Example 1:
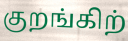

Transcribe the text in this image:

குறங்கிற்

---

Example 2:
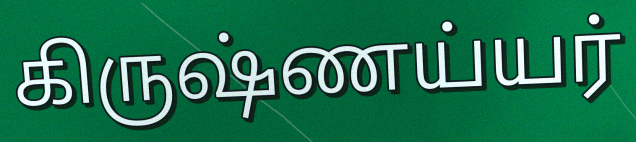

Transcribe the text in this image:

கிருஷ்ணய்யர்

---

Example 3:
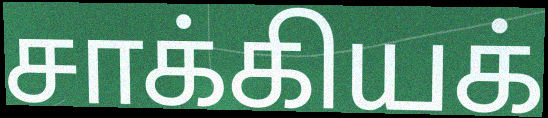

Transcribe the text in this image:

சாக்கியக்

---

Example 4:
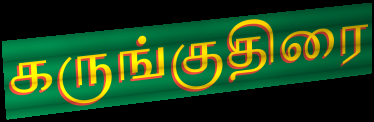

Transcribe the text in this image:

கருங்குதிரை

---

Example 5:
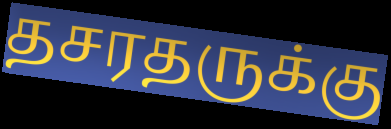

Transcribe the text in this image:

தசரதருக்கு